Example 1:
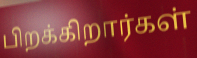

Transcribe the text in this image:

பிறக்கிறார்கள்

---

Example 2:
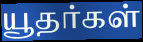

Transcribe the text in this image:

யூதர்கள்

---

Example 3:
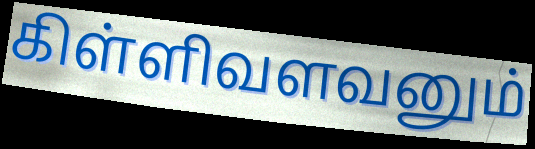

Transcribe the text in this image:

கிள்ளிவளவனும்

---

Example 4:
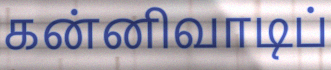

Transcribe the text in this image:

கன்னிவாடிப்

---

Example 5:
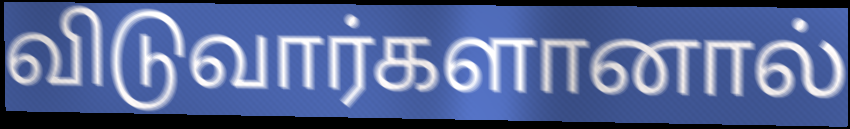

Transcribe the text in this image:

விடுவார்களானால்